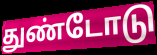
துண்டோடு